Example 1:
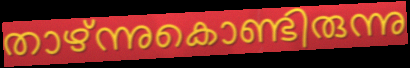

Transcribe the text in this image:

താഴ്ന്നുകൊണ്ടിരുന്നു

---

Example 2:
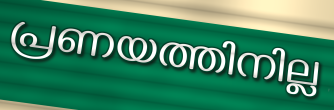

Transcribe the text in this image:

പ്രണയത്തിനില്ല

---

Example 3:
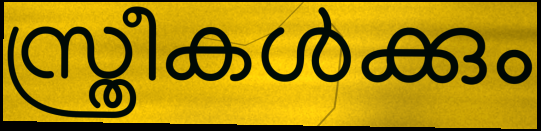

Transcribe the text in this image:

സ്ത്രീകൾക്കും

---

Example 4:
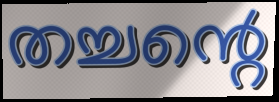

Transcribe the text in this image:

തച്ചന്റെ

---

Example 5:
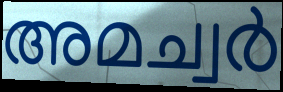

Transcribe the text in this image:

അമച്വർ